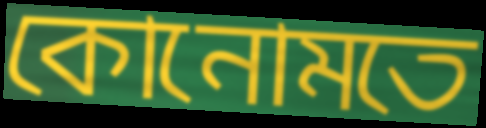
কোনোমতে